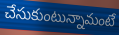
చేసుకుంటున్నామంటే